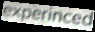
experinced